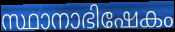
സ്ഥാനാഭിഷേകം